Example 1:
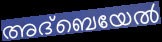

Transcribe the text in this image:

അദ്ബെയേൽ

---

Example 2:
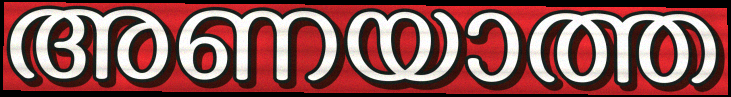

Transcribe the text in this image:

അണയാത്ത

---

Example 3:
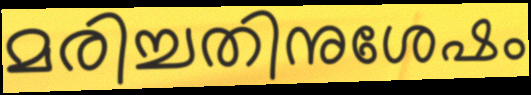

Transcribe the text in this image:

മരിച്ചതിനുശേഷം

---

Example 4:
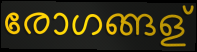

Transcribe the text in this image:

രോഗങ്ങള്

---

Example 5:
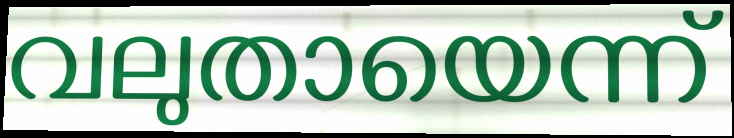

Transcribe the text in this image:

വലുതായെന്ന്